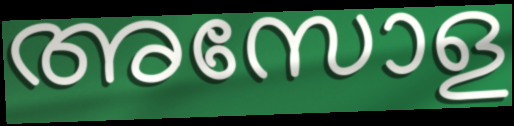
അസോള